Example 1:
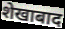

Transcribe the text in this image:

शेखाबाद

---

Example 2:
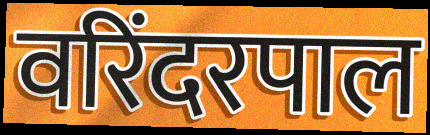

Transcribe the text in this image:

वरिंदरपाल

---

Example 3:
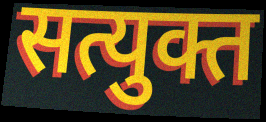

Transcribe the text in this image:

सत्युक्त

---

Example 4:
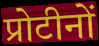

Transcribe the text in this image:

प्रोटीनों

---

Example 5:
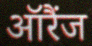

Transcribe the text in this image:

ऑरैंज